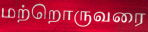
மற்றொருவரை